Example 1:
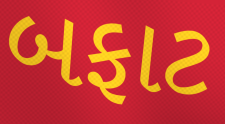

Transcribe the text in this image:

બફાટ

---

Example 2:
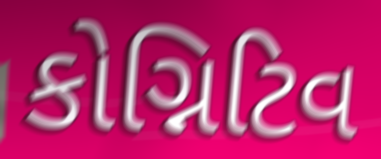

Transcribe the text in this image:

કોગ્નિટિવ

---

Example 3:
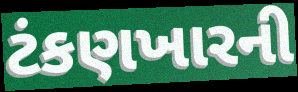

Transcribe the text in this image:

ટંકણખારની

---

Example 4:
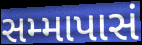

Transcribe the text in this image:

સમ્માપાસં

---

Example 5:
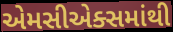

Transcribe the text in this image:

એમસીએક્સમાંથી